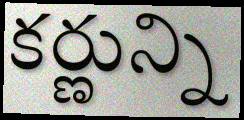
కర్ణున్ని